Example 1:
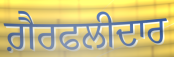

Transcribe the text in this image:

ਗ਼ੈਰਫਲੀਦਾਰ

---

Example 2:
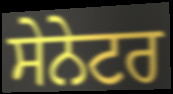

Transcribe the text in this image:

ਸੇਨੇਟਰ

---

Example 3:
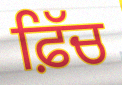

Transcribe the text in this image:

ਫ਼ਿੱਚ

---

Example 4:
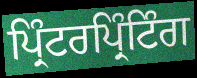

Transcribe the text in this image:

ਪ੍ਰਿੰਟਰਪ੍ਰਿੰਟਿੰਗ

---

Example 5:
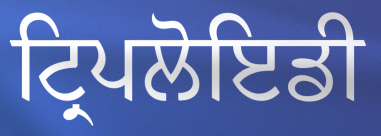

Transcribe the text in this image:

ਟ੍ਰਿਪਲੋਇਡੀ